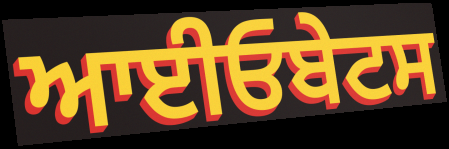
ਆਈਓਬੇਟਸ